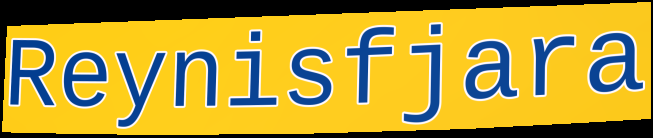
Reynisfjara